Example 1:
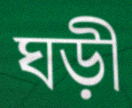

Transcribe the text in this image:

ঘড়ী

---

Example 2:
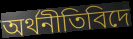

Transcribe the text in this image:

অৰ্থনীতিবিদে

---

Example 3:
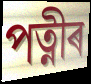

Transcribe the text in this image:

পত্নীৰ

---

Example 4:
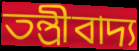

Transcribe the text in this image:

তন্ত্ৰীবাদ্য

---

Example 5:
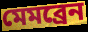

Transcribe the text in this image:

মেমব্ৰেন